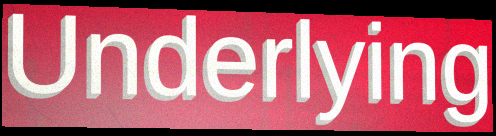
Underlying